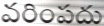
వరింపదు